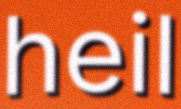
heil